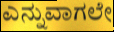
ಎನ್ನುವಾಗಲೇ